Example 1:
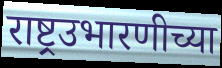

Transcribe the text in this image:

राष्ट्रउभारणीच्या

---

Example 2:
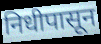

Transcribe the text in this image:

निधीपासून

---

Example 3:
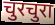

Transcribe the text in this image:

चुरचुरा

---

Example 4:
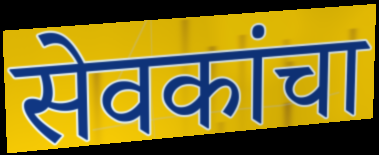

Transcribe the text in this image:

सेवकांचा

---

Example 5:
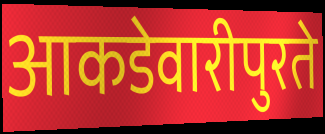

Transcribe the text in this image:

आकडेवारीपुरते